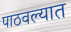
पाठवल्यात